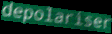
depolariser